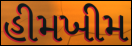
હીમખીમ